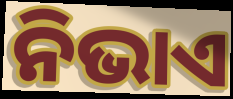
ନିଭାଏ